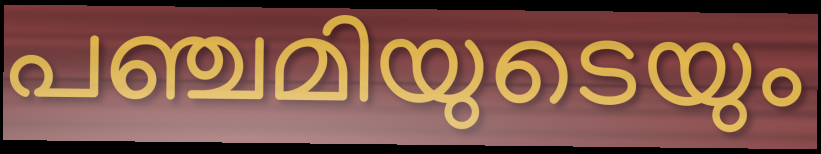
പഞ്ചമിയുടെയും